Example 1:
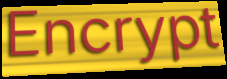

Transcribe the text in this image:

Encrypt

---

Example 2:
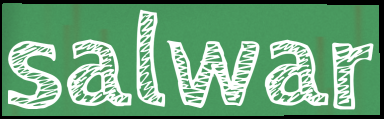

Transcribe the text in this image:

salwar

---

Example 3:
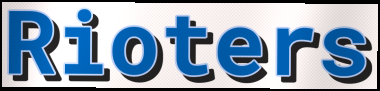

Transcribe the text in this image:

Rioters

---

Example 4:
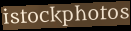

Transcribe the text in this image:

istockphotos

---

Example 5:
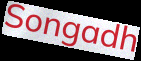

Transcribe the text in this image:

Songadh